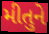
મીતુને